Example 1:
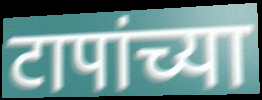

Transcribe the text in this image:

टापांच्या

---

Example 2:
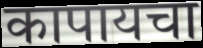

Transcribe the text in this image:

कापायचा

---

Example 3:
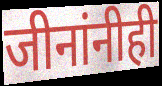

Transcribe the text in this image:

जीनांनीही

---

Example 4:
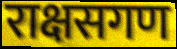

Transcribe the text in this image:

राक्षसगण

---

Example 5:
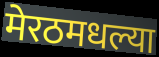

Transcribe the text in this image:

मेरठमधल्या